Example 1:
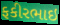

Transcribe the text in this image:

ફકીરભાઇ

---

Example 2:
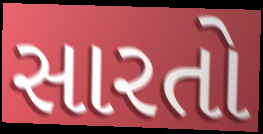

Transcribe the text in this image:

સારતો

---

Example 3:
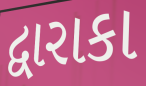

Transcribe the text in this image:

દ્વારાકા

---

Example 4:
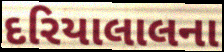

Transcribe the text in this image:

દરિયાલાલના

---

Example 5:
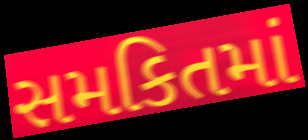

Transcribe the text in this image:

સમકિતમાં